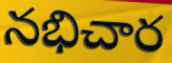
నభిచార